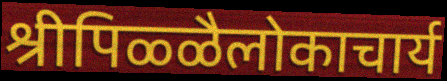
श्रीपिळ्ळैलोकाचार्य